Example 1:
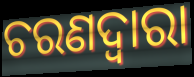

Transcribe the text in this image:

ଚରଣଦ୍ୱାରା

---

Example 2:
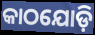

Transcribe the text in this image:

କାଠଯୋଡ଼ି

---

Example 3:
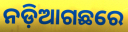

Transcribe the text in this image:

ନଡ଼ିଆଗଛରେ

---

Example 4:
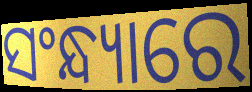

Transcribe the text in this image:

ସଂନ୍ଧ୍ୟାରେ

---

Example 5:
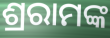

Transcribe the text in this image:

ଶ୍ରରାମଙ୍କ